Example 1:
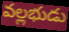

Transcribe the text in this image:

వల్లభుడు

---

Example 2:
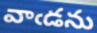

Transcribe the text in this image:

వాఁడను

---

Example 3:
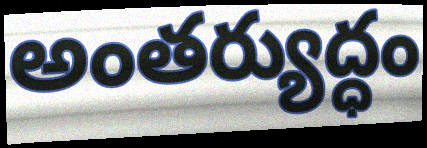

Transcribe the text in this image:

అంతర్యుద్ధం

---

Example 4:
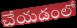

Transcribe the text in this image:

చేయడంలో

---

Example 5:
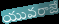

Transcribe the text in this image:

యువరాజే